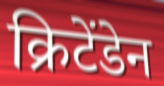
क्रिटेंडेन